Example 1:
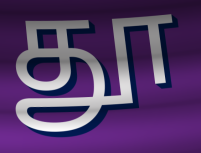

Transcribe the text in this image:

தூ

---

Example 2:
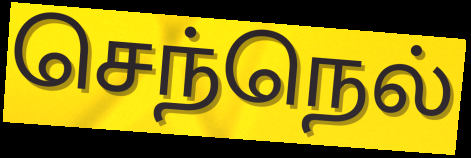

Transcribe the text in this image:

செந்நெல்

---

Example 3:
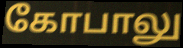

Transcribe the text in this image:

கோபாலு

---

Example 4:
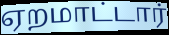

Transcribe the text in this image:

ஏறமாட்டார்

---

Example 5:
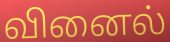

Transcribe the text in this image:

வினைல்